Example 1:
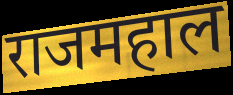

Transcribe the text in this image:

राजमहाल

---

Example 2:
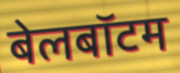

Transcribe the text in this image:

बेलबॉटम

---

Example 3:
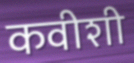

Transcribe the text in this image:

कवीशी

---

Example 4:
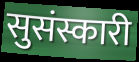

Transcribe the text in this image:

सुसंस्कारी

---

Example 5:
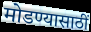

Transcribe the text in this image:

मोडण्यासाठीं